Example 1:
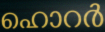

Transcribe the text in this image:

ഹൊറർ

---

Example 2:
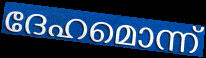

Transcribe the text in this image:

ദേഹമൊന്ന്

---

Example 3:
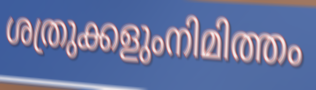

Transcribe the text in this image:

ശത്രുക്കളുംനിമിത്തം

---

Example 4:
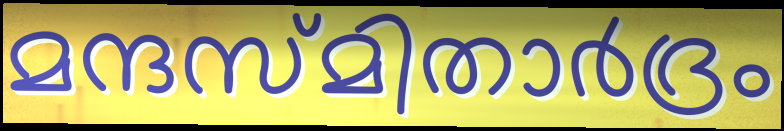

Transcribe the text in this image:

മന്ദസ്മിതാർദ്രം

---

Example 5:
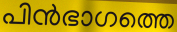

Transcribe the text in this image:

പിൻഭാഗത്തെ